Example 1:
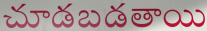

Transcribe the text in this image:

చూడబడతాయి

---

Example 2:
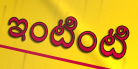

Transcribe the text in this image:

ఇంటింటి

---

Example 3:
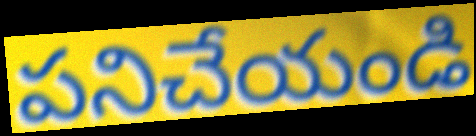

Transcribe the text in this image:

పనిచేయండి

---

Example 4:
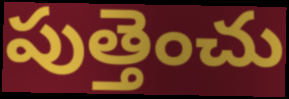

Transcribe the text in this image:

పుత్తెంచు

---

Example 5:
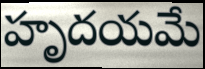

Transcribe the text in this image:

హృదయమే